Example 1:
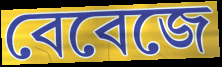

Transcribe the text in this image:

বেবেজে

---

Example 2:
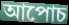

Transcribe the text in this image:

আপোচ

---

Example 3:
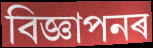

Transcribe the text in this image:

বিজ্ঞাপনৰ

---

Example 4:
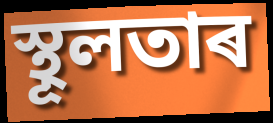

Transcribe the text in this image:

স্থূলতাৰ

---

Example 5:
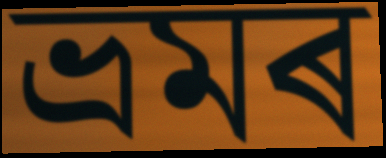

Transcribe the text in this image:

ভ্ৰমৰ